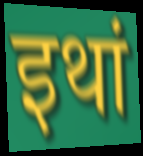
इथां